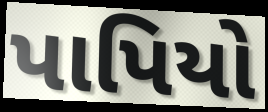
પાપિયો